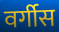
वर्गीस